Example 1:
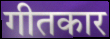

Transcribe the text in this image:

गीतकार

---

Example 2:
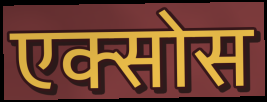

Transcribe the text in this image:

एक्सोस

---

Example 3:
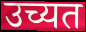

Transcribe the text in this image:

उच्यत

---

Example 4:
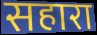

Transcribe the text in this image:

सहारा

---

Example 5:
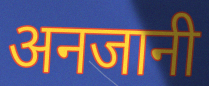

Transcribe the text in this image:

अनजानी